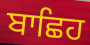
ਬਾਛਿਹ